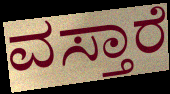
ವಸ್ತಾರೆ